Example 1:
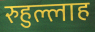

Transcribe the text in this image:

रुहुल्लाह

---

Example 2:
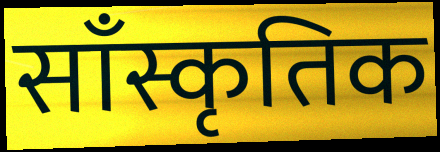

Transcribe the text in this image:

साँस्कृतिक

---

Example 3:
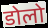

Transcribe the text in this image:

डोलो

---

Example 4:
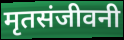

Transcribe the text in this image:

मृतसंजीवनी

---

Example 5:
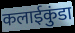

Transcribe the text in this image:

कलाईकुंडा